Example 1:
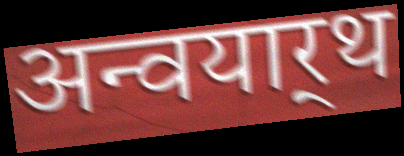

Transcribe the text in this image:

अन्वयार्थ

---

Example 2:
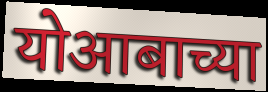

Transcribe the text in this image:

योआबाच्या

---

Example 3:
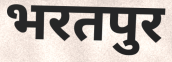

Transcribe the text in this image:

भरतपुर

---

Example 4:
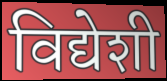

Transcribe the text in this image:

विद्येशी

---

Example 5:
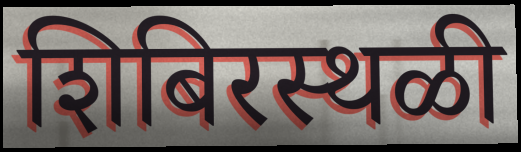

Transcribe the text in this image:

शिबिरस्थळी